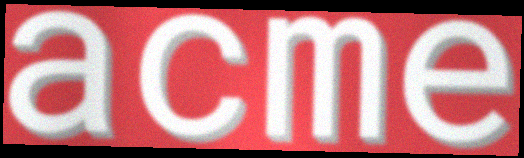
acme